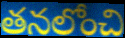
తనలోంచి